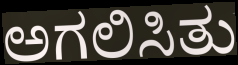
ಅಗಲಿಸಿತು